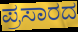
ಪ್ರಸಾರದ